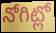
నోగిట్లో